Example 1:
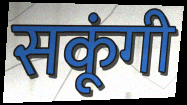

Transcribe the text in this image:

सकूंगी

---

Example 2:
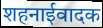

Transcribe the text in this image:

शहनाईवादक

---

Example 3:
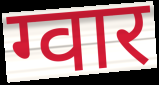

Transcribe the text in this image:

ग्वार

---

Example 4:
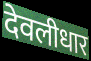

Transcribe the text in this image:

देवलीधार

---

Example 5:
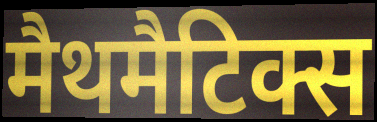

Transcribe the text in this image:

मैथमैटिक्स